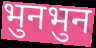
भुनभुन